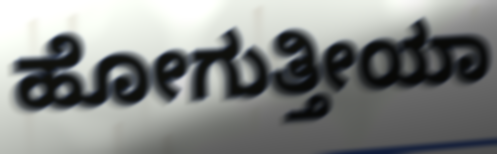
ಹೋಗುತ್ತೀಯಾ